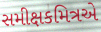
સમીક્ષકમિત્રએ